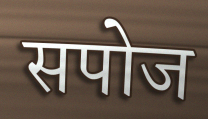
सपोज